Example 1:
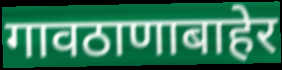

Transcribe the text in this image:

गावठाणाबाहेर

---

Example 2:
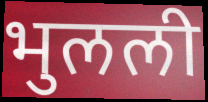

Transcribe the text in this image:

भुलली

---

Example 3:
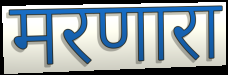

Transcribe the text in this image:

मरणारा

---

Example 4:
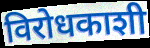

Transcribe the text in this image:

विरोधकाशी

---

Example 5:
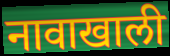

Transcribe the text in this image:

नावाखाली